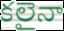
కలైనా